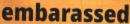
embarassed